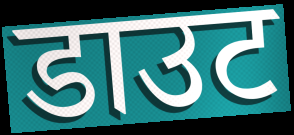
डाउट